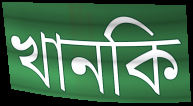
খানকি